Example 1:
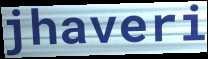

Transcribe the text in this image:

jhaveri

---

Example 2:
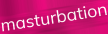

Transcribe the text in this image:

masturbation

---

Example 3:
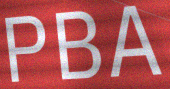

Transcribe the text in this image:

PBA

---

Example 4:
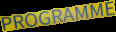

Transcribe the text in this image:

PROGRAMME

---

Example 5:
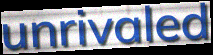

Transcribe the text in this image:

unrivaled